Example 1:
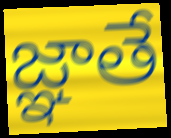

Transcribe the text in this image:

జ్ఞాతే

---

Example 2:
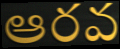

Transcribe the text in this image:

ఆరవ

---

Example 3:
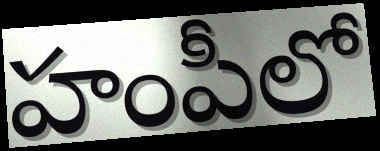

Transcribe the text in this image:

హంపీలో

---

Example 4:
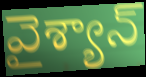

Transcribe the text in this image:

వైశ్యాన్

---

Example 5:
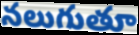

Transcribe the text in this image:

నలుగుతూ